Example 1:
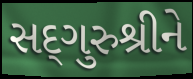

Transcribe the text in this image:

સદ્‌ગુરુશ્રીને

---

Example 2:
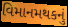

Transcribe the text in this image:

વિમાનમથકનું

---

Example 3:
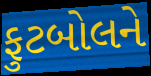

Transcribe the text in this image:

ફુટબોલને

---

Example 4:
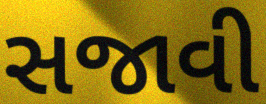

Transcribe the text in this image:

સજાવી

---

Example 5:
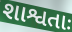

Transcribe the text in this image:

શાશ્વતાઃ